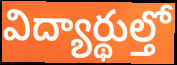
విద్యార్థుల్తో